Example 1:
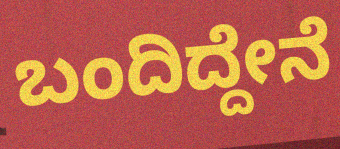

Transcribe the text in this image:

ಬಂದಿದ್ದೇನೆ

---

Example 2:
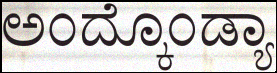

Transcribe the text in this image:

ಅಂದ್ಕೊಂಡ್ಯಾ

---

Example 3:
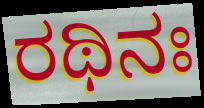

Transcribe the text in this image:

ರಥಿನಃ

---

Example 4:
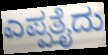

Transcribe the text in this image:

ಎಪ್ಪತ್ತೈದು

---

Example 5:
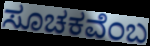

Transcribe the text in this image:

ಸೂಚಕವೆಂಬ